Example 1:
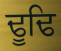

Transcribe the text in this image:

ਢੂਢਿ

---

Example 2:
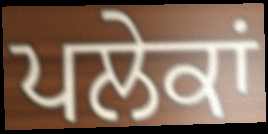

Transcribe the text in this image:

ਪਲੇਕਾਂ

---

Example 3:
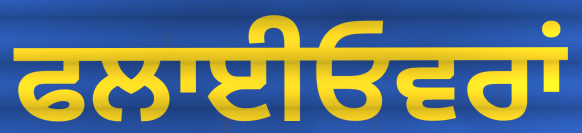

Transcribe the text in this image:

ਫਲਾਈਓਵਰਾਂ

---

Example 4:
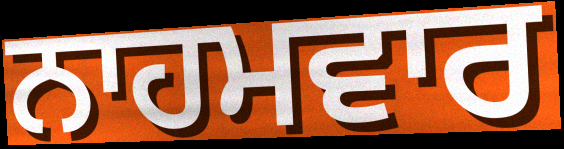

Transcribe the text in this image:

ਨਾਹਮਵਾਰ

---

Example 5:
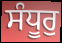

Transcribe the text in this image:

ਸੰਧੂਰੁ